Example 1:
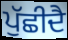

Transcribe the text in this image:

ਪੁੱਛੀਦੈ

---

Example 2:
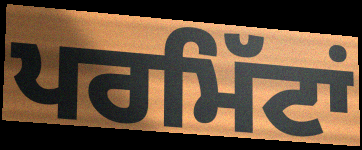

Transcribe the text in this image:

ਪਰਮਿੱਟਾਂ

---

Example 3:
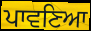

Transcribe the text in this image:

ਪਾਵਣਿਆ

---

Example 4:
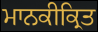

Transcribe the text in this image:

ਮਾਨਕੀਕ੍ਰਿਤ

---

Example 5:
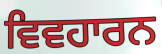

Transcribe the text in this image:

ਵਿਵਹਾਰਨ